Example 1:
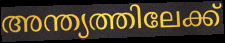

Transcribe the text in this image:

അന്ത്യത്തിലേക്ക്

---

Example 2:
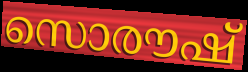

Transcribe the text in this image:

സൊരൗഷ്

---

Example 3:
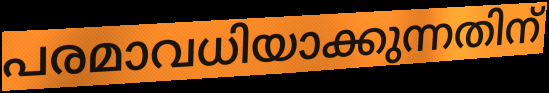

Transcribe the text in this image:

പരമാവധിയാക്കുന്നതിന്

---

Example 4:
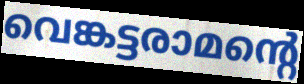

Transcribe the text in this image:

വെങ്കട്ടരാമന്റെ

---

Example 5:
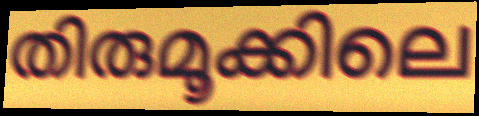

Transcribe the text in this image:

തിരുമൂക്കിലെ